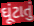
ઘૂંટાતું